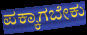
ಪಕ್ಕಾಗಬೇಕು